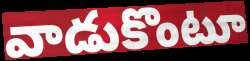
వాడుకొంటూ